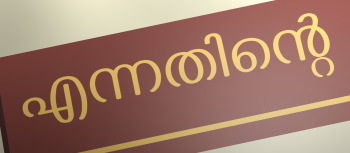
എന്നതിന്റെ